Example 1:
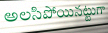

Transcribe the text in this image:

అలసిపోయినట్టుగా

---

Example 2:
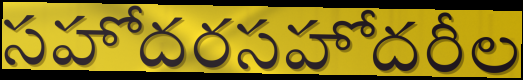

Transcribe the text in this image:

సహోదరసహోదరీల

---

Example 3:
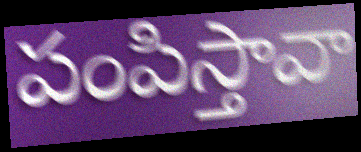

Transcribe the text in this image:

పంపిస్తావా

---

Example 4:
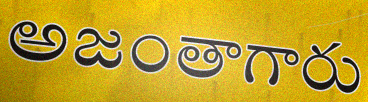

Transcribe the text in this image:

అజంతాగారు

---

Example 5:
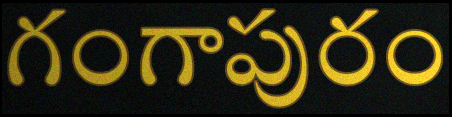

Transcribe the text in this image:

గంగాపురం